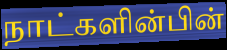
நாட்களின்பின்